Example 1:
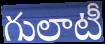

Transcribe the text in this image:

గులాటీ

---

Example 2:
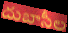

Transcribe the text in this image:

దుబాసీల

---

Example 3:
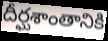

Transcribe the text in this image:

దీర్ఘశాంతానికి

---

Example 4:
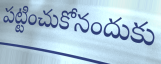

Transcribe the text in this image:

పట్టించుకోనందుకు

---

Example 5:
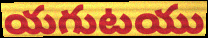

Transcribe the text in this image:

యగుటయు